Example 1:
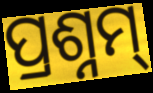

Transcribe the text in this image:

ପ୍ରଶ୍ନମ୍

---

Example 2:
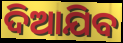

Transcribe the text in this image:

ଦିଆଯିବ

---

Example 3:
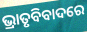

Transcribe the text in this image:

ଭ୍ରାତୃବିବାଦରେ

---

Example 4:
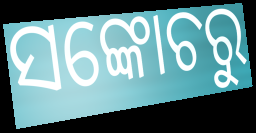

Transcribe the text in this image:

ସଙ୍କୋଚରୁ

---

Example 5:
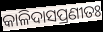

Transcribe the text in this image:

କାଳିଦାସପ୍ରଣୀତଃ